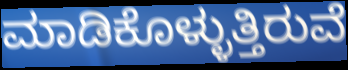
ಮಾಡಿಕೊಳ್ಳುತ್ತಿರುವೆ